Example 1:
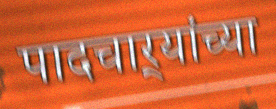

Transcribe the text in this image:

पादचार्यांच्या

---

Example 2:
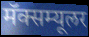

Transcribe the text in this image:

मॅक्सम्यूलर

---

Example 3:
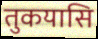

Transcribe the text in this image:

तुकयासि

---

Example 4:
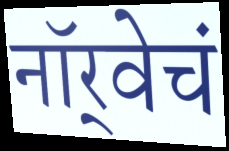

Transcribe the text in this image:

नॉर्वेचं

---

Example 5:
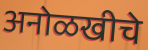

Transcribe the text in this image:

अनोळखीचे